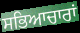
ਸਭਿਆਚਾਰਾਂ